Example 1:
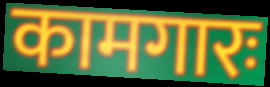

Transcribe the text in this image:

कामगारः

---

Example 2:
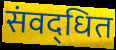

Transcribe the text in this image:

संवद्धित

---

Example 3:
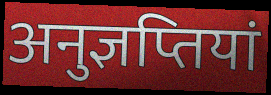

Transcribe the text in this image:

अनुज्ञप्तियां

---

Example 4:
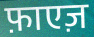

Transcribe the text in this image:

फ़ाएज़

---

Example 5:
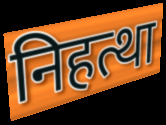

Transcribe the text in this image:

निहत्था